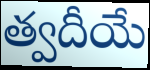
త్వదీయే